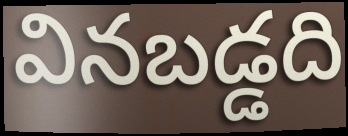
వినబడ్డది